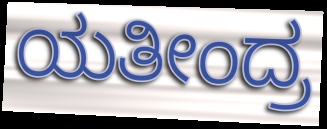
ಯತೀಂದ್ರ